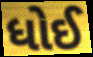
ધોઈ